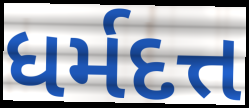
ધર્મદત્ત